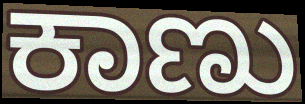
ಕಾಣು